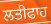
ਲਤੀਫਾਹ